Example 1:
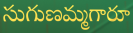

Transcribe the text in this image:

సుగుణమ్మగారూ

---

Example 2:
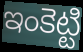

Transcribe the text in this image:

ఇంకెట్టి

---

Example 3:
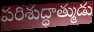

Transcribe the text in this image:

పరిశుద్ధాత్ముడు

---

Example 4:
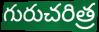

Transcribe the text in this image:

గురుచరిత్ర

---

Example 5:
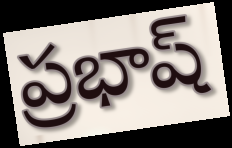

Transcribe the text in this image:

ప్రభాష్